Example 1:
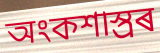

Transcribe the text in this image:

অংকশাস্ত্ৰৰ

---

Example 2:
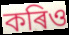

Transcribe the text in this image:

কৰিও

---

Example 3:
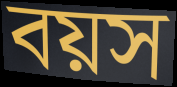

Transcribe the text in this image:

বয়স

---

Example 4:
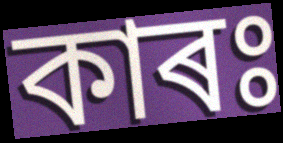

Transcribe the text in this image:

কাৰঃ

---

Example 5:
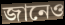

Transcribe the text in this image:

জানেও